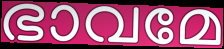
ഭാവമേ